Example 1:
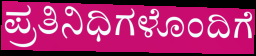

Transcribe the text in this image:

ಪ್ರತಿನಿಧಿಗಳೊಂದಿಗೆ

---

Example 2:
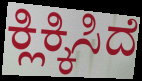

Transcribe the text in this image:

ಕ್ಲಿಕ್ಕಿಸಿದೆ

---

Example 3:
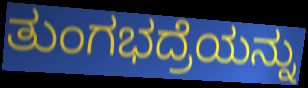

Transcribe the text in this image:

ತುಂಗಭದ್ರೆಯನ್ನು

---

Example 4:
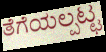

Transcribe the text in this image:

ತೆಗೆಯಲ್ಪಟ್ಟ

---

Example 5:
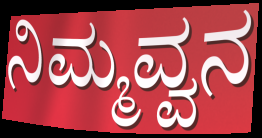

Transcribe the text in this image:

ನಿಮ್ಮವ್ವನ